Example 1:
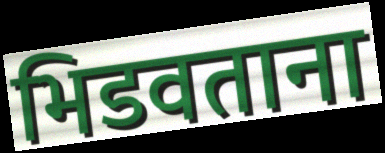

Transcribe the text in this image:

भिडवताना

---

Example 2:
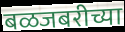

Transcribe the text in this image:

बळजबरीच्या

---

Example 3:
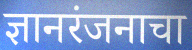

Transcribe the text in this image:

ज्ञानरंजनाचा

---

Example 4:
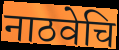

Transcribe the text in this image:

नाठवेचि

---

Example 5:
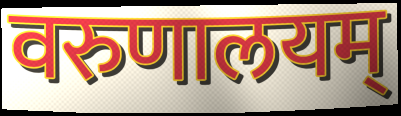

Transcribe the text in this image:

वरुणालयम्